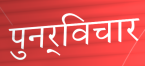
पुनर्विचार